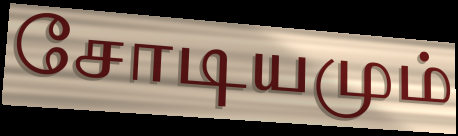
சோடியமும்